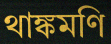
থাঙ্কমণি